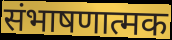
संभाषणात्मक